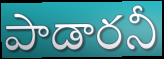
పాడారనీ